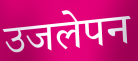
उजलेपन